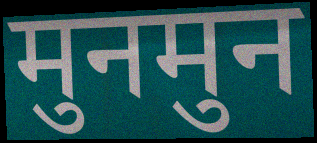
मुनमुन